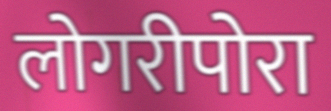
लोगरीपोरा